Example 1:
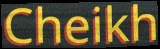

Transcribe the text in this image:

Cheikh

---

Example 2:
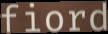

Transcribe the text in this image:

fiord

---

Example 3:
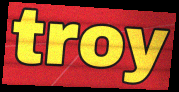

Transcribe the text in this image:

troy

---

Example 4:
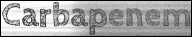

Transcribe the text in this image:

Carbapenem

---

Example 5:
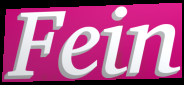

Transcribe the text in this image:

Fein